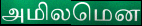
அமிலமென